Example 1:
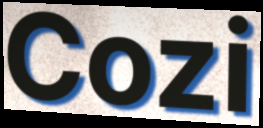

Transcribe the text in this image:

Cozi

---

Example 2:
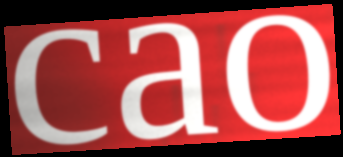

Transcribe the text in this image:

cao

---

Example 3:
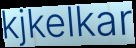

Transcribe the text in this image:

kjkelkar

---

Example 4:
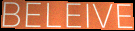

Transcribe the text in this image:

BELEIVE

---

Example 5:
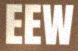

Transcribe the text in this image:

EEW